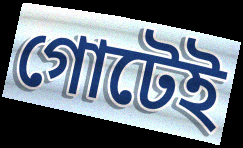
গোটেই